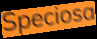
Speciosa